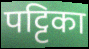
पट्टिका